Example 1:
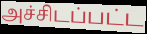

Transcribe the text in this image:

அச்சிடப்பட்ட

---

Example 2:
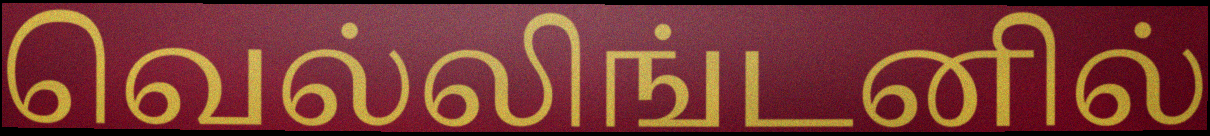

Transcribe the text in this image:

வெல்லிங்டனில்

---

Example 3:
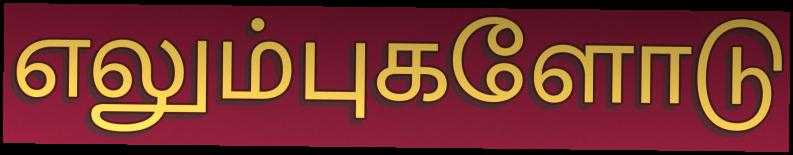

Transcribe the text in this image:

எலும்புகளோடு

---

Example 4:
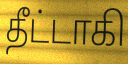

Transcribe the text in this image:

தீட்டாகி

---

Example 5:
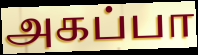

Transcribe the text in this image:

அகப்பா